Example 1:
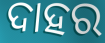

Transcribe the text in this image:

ଦାହର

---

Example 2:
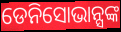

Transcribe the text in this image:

ଡେନିସୋଭାନ୍ସଙ୍କ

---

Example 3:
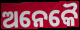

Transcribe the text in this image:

ଅନେକୈ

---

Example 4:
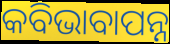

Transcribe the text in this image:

କବିଭାବାପନ୍ନ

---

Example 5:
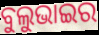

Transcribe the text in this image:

ବୁଲୁଭାଇର